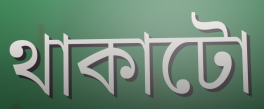
থাকাটো